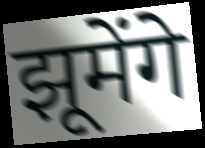
झूमेंगे